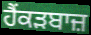
ਹੈਂਕੜਬਾਜ਼